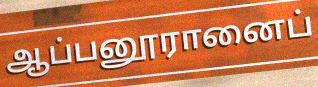
ஆப்பனூரானைப்